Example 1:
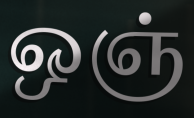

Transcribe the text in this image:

ஒஞ்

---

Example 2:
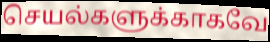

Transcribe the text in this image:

செயல்களுக்காகவே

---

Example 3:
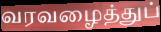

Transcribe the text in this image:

வரவழைத்துப்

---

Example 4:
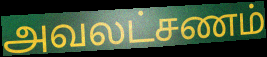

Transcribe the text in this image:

அவலட்சணம்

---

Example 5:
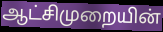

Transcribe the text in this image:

ஆட்சிமுறையின்